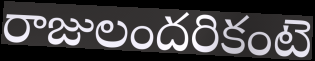
రాజులందరికంటె